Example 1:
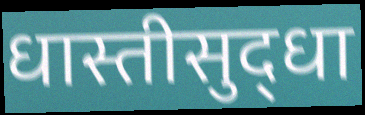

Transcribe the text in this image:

धास्तीसुद्धा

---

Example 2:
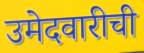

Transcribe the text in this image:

उमेदवारीची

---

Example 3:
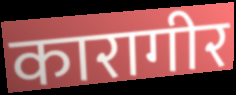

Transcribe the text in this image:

कारागीर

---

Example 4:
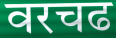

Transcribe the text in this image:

वरचढ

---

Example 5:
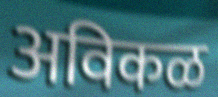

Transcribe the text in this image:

अविकळ